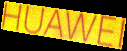
HUAWEI